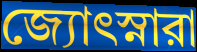
জ্যোৎস্নারা